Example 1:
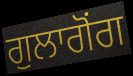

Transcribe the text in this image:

ਗੁਲਾਗੋਂਗ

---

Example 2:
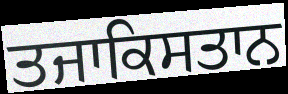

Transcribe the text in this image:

ਤਜਾਕਿਸਤਾਨ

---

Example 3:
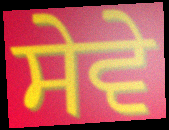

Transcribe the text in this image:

ਸੇਵੇ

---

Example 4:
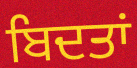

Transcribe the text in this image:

ਬਿਦਤਾਂ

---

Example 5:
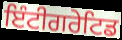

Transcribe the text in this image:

ਇੰਟੀਗਰੇਟਿਡ